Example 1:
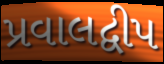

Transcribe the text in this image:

પ્રવાલદ્વીપ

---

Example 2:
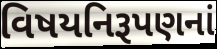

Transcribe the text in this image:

વિષયનિરૂપણનાં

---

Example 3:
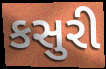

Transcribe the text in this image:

કસુરી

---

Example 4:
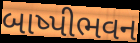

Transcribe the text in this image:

બાષ્પીભવન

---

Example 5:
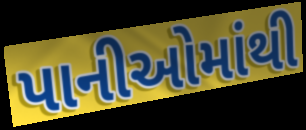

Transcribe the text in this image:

પાનીઓમાંથી